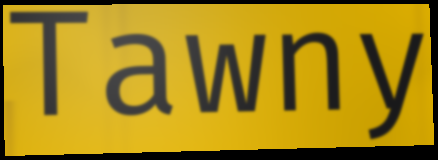
Tawny